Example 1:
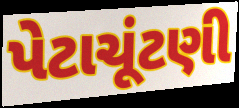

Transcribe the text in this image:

પેટાચૂંટણી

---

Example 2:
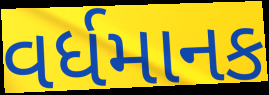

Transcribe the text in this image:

વર્ધમાનક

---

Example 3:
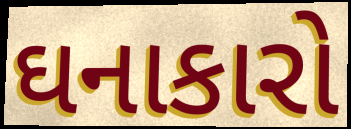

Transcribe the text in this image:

ઘનાકારો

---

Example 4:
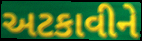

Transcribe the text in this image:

અટકાવીને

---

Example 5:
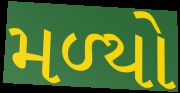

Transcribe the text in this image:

મળ્‍યો